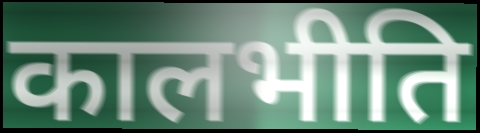
कालभीति